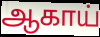
ஆகாய்